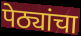
पेठ्यांचा